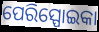
ପେରିସ୍ପୋଇକା